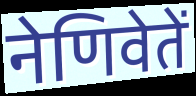
नेणिवेतें